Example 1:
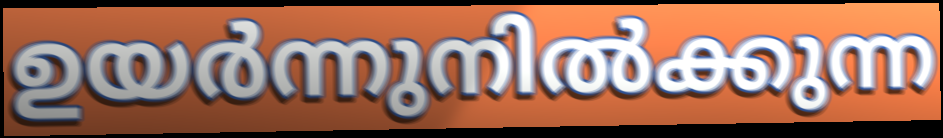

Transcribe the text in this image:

ഉയർന്നുനിൽക്കുന്ന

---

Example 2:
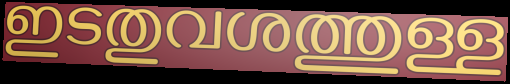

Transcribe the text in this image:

ഇടതുവശത്തുള്ള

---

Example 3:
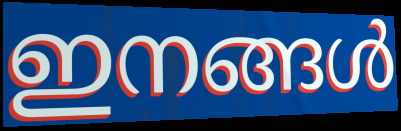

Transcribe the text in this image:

ഇനങ്ങൾ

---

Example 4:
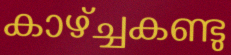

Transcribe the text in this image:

കാഴ്ച്ചകണ്ടു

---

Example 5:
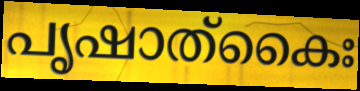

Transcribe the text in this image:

പൃഷാത്കൈഃ